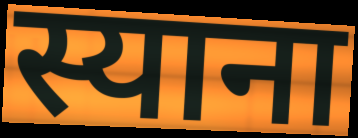
स्याना